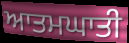
ਆਤਮਘਾਤੀ